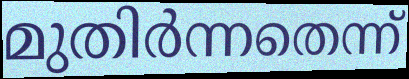
മുതിർന്നതെന്ന്